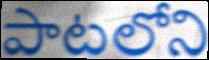
పాటలోని